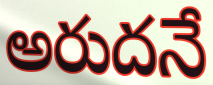
అరుదనే